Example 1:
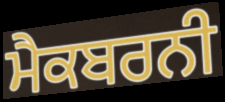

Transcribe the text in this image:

ਮੈਕਬਰਨੀ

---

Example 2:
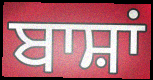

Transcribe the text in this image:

ਬਾਸ਼ਾਂ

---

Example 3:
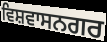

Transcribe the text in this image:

ਵਿਸ਼ਵਾਸਨਗਰ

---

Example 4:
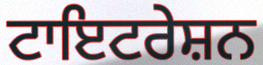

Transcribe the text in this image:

ਟਾਇਟਰੇਸ਼ਨ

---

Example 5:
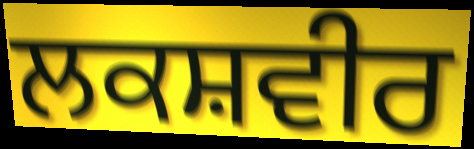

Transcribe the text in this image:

ਲਕਸ਼ਵੀਰ